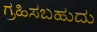
ಗ್ರಹಿಸಬಹುದು